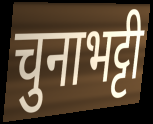
चुनाभट्टी